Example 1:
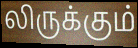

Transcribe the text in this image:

லிருக்கும்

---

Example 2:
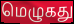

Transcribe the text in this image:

மெழுகது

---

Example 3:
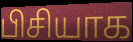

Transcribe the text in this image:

பிசியாக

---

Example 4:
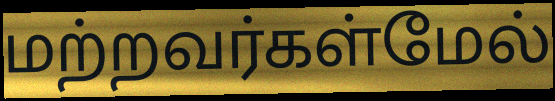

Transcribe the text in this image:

மற்றவர்கள்மேல்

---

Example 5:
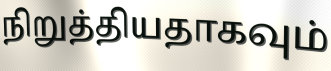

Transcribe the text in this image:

நிறுத்தியதாகவும்